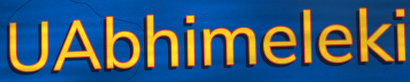
UAbhimeleki